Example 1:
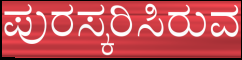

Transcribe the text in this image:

ಪುರಸ್ಕರಿಸಿರುವ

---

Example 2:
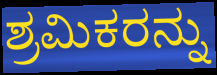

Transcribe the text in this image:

ಶ್ರಮಿಕರನ್ನು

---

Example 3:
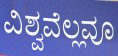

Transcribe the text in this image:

ವಿಶ್ವವೆಲ್ಲವೂ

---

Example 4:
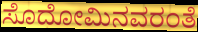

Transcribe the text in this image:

ಸೊದೋಮಿನವರಂತೆ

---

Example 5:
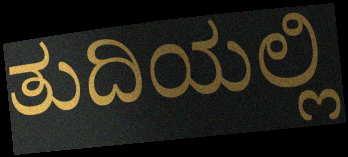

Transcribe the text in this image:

ತುದಿಯಲ್ಲಿ